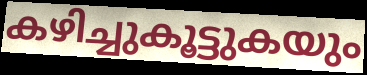
കഴിച്ചുകൂട്ടുകയും